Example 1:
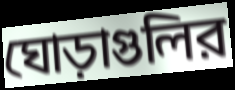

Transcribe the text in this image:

ঘোড়াগুলির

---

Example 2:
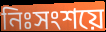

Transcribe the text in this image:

নিঃসংশয়ে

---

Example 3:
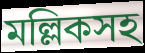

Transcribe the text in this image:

মল্লিকসহ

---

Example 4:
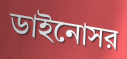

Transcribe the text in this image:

ডাইনোসর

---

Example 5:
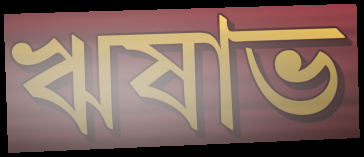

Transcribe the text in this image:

ঋষাভ